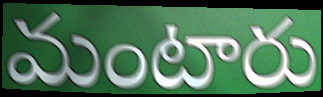
మంటారు